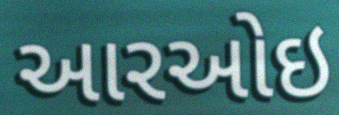
આરઓઇ